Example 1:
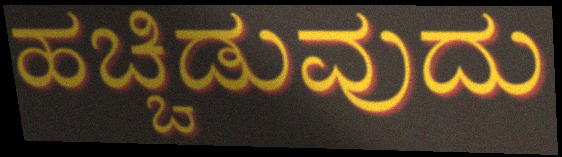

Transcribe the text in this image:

ಹಚ್ಚಿಡುವುದು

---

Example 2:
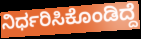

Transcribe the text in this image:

ನಿರ್ಧರಿಸಿಕೊಂಡಿದ್ದೆ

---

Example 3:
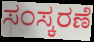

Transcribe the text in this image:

ಸಂಸ್ಕರಣೆ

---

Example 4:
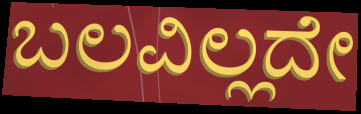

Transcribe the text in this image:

ಬಲವಿಲ್ಲದೇ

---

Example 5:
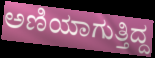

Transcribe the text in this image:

ಅಣಿಯಾಗುತ್ತಿದ್ದ